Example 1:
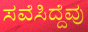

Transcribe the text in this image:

ಸವೆಸಿದ್ದೆವು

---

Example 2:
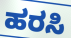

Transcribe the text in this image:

ಹರಸಿ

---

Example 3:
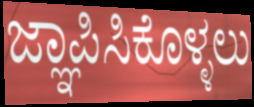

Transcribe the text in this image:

ಜ್ಞಾಪಿಸಿಕೊಳ್ಳಲು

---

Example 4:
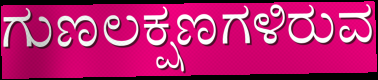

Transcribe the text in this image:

ಗುಣಲಕ್ಷಣಗಳಿರುವ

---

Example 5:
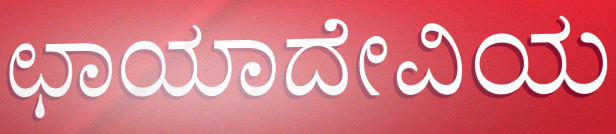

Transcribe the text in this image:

ಛಾಯಾದೇವಿಯ